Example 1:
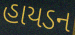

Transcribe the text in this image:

હાયડન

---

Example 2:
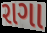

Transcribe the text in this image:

રાગા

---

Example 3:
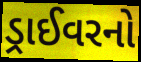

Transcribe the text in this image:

ડ્રાઈવરનો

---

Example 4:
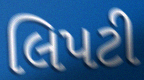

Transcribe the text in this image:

લિપટી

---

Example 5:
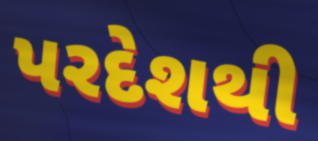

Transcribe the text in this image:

પરદેશથી